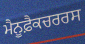
ਮੈਨੂਫ਼ੈਕਚਰਰਸ